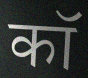
कॉ